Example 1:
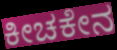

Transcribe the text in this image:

ಕೀಚಕೇನ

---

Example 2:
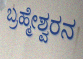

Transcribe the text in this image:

ಬ್ರಹ್ಮೇಶ್ವರನ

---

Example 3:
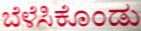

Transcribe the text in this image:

ಬೆಳೆಸಿಕೊಂಡು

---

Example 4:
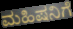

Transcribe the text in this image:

ಮಹಿಷನಿಗೆ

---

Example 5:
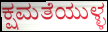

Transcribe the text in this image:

ಕ್ಷಮತೆಯುಳ್ಳ